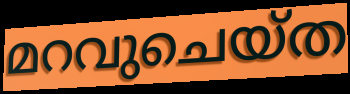
മറവുചെയ്ത